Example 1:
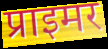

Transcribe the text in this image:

प्राइमर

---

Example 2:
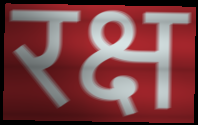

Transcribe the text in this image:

रक्ष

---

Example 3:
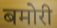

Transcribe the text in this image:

बमोरी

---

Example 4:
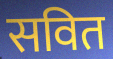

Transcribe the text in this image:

सवित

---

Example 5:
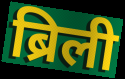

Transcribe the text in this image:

ब्रिली